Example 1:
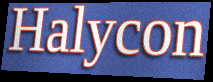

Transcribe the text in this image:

Halycon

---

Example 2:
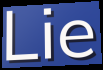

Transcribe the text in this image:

Lie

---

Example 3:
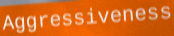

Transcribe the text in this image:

Aggressiveness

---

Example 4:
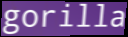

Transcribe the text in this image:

gorilla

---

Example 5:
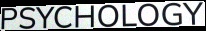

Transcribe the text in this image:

PSYCHOLOGY